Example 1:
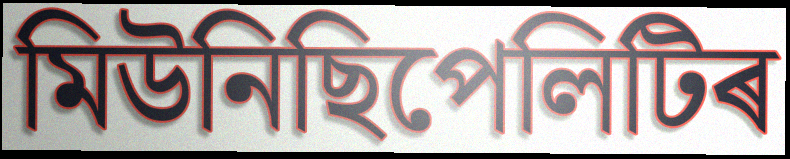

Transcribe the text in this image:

মিউনিছিপেলিটিৰ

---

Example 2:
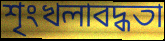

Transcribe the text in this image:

শৃংখলাবদ্ধতা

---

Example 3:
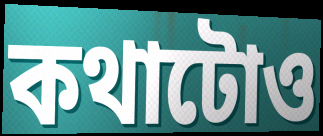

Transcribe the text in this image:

কথাটোও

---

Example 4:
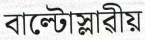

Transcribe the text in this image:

বাল্টোস্লাৱীয়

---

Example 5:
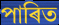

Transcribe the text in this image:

পাৰিত